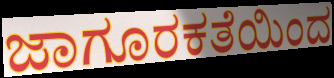
ಜಾಗೂರಕತೆಯಿಂದ